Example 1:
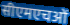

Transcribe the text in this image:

सीएमएचओं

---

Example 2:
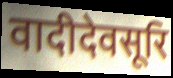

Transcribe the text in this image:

वादीदेवसूरि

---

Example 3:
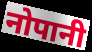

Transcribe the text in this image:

नोपानी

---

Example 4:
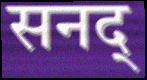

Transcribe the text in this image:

सनद्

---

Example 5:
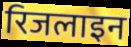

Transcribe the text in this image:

रिजलाइन